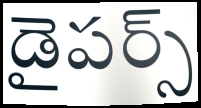
డైపర్స్